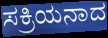
ಸಕ್ರಿಯನಾದ